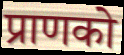
प्राणको